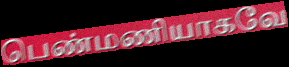
பெண்மணியாகவே